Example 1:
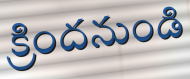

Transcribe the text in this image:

క్రిందనుండి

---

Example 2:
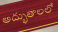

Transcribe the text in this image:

అద్భుతాలలో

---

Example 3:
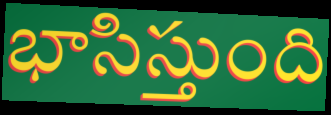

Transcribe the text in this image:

భాసిస్తుంది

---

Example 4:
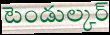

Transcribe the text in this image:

టెండుల్కర్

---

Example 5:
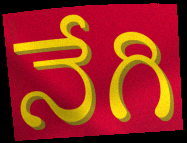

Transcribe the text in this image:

నేగి